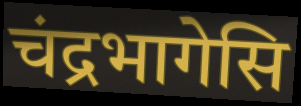
चंद्रभागेसि